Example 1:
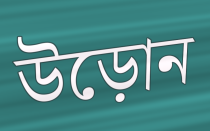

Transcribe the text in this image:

উড়োন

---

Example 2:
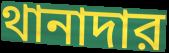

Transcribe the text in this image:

থানাদার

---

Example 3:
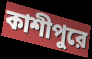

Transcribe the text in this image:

কাশীপুরে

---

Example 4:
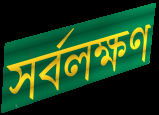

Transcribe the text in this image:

সর্বলক্ষণ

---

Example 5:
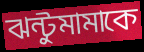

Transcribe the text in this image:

ঝন্টুমামাকে